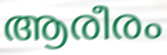
ആരീരം